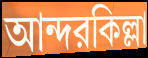
আন্দরকিল্লা